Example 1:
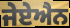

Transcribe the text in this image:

ਜੇਏਐਨ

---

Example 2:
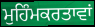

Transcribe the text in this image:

ਮੁਹਿੰਮਕਰਤਾਵਾਂ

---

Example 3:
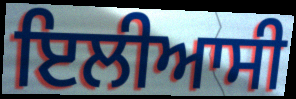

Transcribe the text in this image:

ਇਲੀਆਸੀ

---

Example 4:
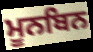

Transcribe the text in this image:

ਮੂਨਬਿਨ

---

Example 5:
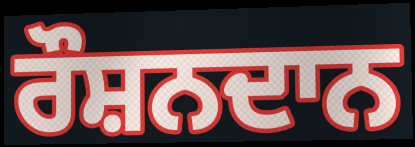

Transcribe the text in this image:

ਰੌਸ਼ਨਦਾਨ